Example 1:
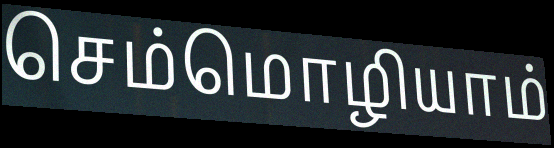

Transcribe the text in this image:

செம்மொழியாம்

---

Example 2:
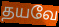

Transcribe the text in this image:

தயவே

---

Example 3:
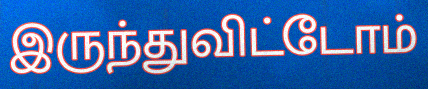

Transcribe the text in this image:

இருந்துவிட்டோம்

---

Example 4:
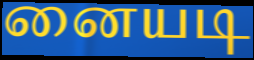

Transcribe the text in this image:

னையடி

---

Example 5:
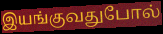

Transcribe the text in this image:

இயங்குவதுபோல்